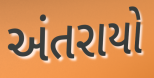
અંતરાયો